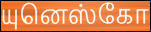
யுனெஸ்கோ